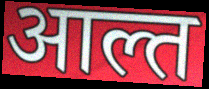
आल्त